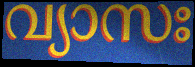
വ്യാസഃ